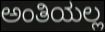
ಅಂತಿಯಲ್ಲ